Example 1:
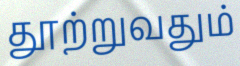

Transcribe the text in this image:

தூற்றுவதும்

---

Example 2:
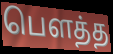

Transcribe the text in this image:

பெளத்த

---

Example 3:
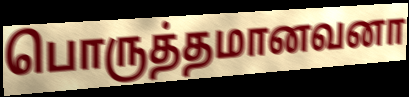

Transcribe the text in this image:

பொருத்தமானவனா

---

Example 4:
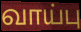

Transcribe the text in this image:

வாய்பு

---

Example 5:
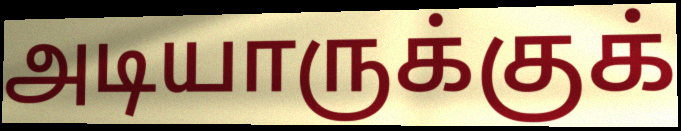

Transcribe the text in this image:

அடியாருக்குக்